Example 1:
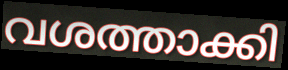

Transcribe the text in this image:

വശത്താക്കി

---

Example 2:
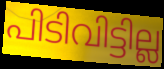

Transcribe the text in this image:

പിടിവിട്ടില്ല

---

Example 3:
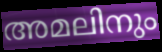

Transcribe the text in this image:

അമലിനും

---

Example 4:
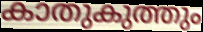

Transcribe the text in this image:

കാതുകുത്തും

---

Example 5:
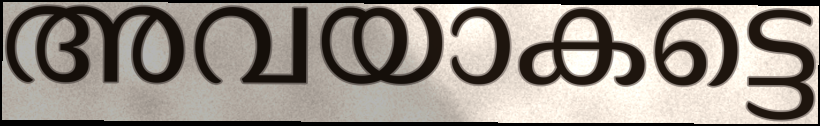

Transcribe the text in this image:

അവയാകട്ടെ